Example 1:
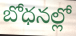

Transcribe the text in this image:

బోధనల్లో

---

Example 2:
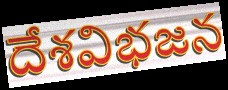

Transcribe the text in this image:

దేశవిభజన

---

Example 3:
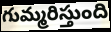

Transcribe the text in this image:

గుమ్మరిస్తుంది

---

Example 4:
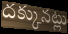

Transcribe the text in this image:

దక్కునట్లు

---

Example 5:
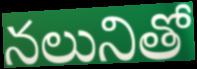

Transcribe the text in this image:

నలునితో